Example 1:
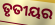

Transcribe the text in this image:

ତୃତୀୟର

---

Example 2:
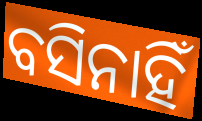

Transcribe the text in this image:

ବସିନାହିଁ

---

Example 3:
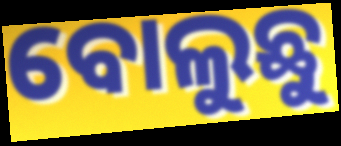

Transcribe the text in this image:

ବୋଲୁଛୁ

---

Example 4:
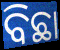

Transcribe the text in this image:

ବିଛା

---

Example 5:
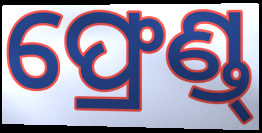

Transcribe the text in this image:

ଫ୍ରେଣ୍ଡ୍